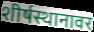
शीर्षस्थानावर